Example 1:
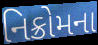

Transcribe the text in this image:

નિક્રોમના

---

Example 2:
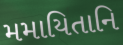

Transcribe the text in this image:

મમાયિતાનિ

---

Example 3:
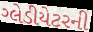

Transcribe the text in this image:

ગ્લેડીયેટરની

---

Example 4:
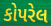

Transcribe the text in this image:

કોપરેલ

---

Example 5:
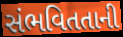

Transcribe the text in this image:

સંભવિતતાની